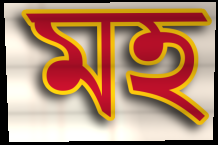
মহ